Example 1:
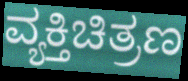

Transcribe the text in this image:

ವ್ಯಕ್ತಿಚಿತ್ರಣ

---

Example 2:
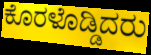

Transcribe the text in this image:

ಕೊರಳೊಡ್ಡಿದರು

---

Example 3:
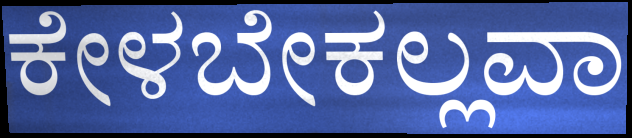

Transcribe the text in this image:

ಕೇಳಬೇಕಲ್ಲವಾ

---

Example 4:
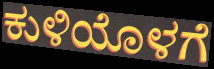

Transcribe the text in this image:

ಕುಳಿಯೊಳಗೆ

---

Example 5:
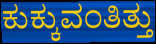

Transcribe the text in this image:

ಕುಕ್ಕುವಂತಿತ್ತು